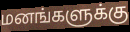
மனங்களுக்கு